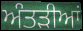
ਅੰਤੜੀਆਂ